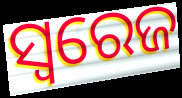
ସ୍ବରେଜ